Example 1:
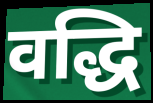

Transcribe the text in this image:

वद्धि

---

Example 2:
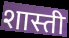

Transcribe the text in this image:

शास्ती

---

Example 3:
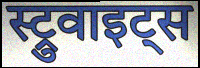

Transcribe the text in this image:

स्ट्रुवाइट्स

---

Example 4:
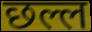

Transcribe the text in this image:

छल्ल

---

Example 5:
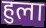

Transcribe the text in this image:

हुला